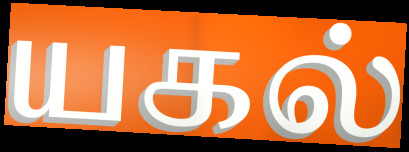
யகல்